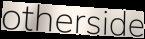
otherside